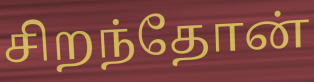
சிறந்தோன்